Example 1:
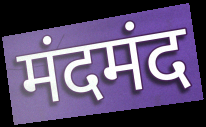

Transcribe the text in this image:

मंदमंद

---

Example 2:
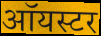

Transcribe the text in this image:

ऑयस्टर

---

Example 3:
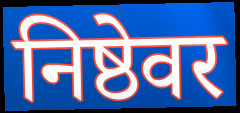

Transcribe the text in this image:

निष्ठेवर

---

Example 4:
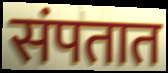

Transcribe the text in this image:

संपतात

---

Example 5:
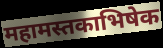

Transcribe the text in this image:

महामस्तकाभिषेक